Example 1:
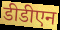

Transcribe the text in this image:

डीडीएन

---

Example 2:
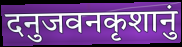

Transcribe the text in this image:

दनुजवनकृशानुं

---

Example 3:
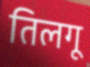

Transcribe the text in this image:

तिलगू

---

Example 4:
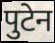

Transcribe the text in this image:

पुटेन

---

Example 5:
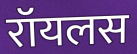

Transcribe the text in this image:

रॉयलस